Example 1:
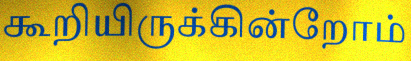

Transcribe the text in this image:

கூறியிருக்கின்றோம்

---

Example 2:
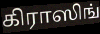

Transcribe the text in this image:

கிராஸிங்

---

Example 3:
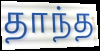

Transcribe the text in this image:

தாந்த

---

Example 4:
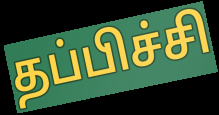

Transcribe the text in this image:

தப்பிச்சி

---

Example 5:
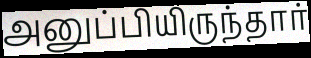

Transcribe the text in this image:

அனுப்பியிருந்தார்